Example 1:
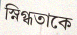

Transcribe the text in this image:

স্নিগ্ধতাকে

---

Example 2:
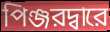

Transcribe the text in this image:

পিঞ্জরদ্বারে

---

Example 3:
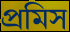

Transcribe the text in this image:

প্রমিস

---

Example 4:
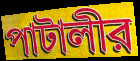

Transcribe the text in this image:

পাটালীর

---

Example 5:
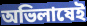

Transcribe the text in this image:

অভিলাষেই